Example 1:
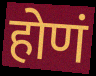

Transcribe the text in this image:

होणं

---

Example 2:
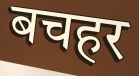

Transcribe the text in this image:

बचहर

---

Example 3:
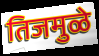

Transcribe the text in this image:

तिजमुळे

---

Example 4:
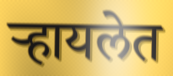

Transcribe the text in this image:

ऱ्हायलेत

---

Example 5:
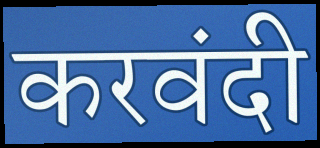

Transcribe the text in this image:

करवंदी